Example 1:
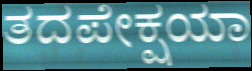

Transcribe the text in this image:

ತದಪೇಕ್ಷಯಾ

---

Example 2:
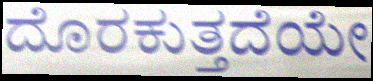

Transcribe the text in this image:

ದೊರಕುತ್ತದೆಯೇ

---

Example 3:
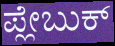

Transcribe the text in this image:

ಪ್ಲೇಬುಕ್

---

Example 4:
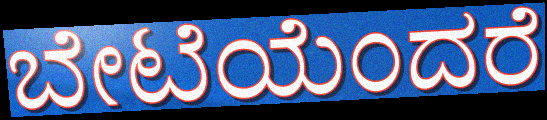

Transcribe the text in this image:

ಬೇಟೆಯೆಂದರೆ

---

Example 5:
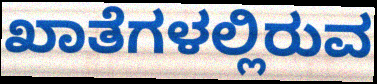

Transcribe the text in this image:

ಖಾತೆಗಳಲ್ಲಿರುವ